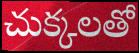
చుక్కలతో